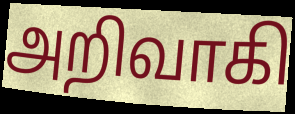
அறிவாகி